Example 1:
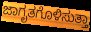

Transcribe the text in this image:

ಜಾಗೃತಗೊಳಿಸುತ್ತಾ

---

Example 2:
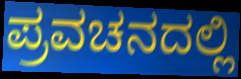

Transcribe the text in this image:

ಪ್ರವಚನದಲ್ಲಿ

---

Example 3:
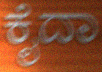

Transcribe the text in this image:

ಕೈದಾ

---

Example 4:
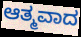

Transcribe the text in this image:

ಆತ್ಮವಾದ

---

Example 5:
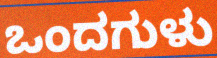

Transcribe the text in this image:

ಒಂದಗುಳು